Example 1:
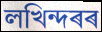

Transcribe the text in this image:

লখিন্দৰৰ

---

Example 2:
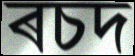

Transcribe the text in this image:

ৰচদ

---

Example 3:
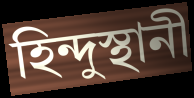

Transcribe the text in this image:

হিন্দুস্থানী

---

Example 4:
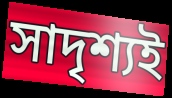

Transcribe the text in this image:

সাদৃশ্যই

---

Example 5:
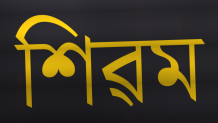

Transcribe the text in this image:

শিৱম